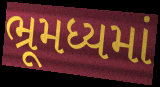
ભ્રૂમધ્યમાં